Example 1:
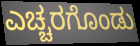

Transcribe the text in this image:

ಎಚ್ಚರಗೊಂಡು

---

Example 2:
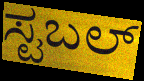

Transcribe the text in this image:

ಸ್ಟಬಲ್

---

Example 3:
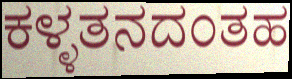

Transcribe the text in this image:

ಕಳ್ಳತನದಂತಹ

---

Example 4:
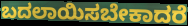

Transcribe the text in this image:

ಬದಲಾಯಿಸಬೇಕಾದರೆ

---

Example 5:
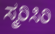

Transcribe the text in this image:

ಸ್ಮರಿಸಿರಿ